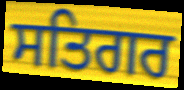
ਸਤਿਗਰ